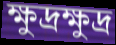
ক্ষুদ্রক্ষুদ্র